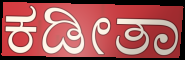
ಕಡೀತಾ